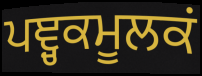
ਪਞ੍ਚਕਮੂਲਕਂ